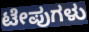
ಟೇಪುಗಳು